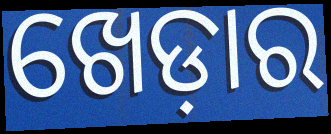
ଖେଡ଼ାର